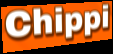
Chippi